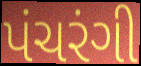
પંચરંગી